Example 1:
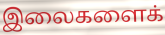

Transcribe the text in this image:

இலைகளைக்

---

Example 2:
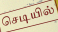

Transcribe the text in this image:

செடியில்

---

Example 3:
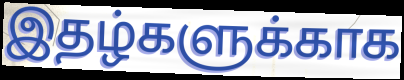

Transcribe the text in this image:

இதழ்களுக்காக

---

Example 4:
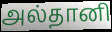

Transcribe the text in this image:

அல்தானி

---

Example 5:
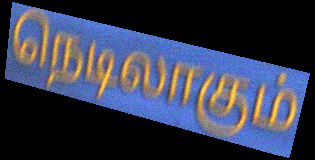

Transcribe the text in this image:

நெடிலாகும்